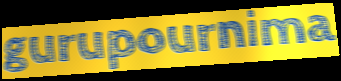
gurupournima